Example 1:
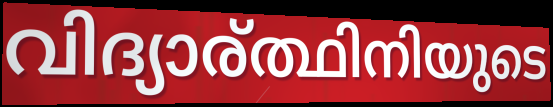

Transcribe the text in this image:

വിദ്യാര്ത്ഥിനിയുടെ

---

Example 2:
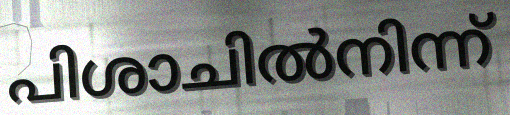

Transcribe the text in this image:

പിശാചിൽനിന്ന്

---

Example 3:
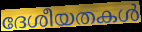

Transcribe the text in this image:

ദേശീയതകൾ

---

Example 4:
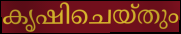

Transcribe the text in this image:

കൃഷിചെയ്തും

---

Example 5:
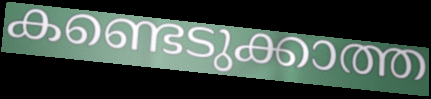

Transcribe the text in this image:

കണ്ടെടുക്കാത്ത